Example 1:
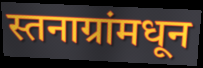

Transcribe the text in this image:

स्तनाग्रांमधून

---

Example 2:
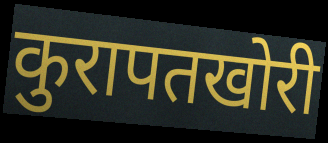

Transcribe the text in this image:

कुरापतखोरी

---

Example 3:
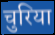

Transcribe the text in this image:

चुरिया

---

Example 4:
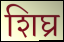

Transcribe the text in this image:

शिघ्र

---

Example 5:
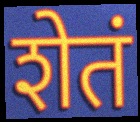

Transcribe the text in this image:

शेतं